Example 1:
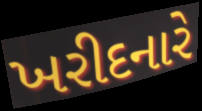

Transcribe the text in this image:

ખરીદનારે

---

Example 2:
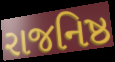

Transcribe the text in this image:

રાજનિષ્ઠ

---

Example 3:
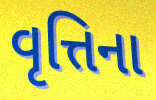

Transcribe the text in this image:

વૃત્તિના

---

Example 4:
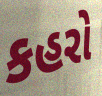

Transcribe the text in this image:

કહરો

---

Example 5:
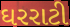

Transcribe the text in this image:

ઘરરાટી